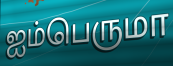
ஐம்பெருமா